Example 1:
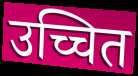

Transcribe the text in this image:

उच्चित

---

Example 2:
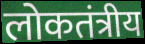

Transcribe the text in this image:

लोकतंत्रीय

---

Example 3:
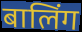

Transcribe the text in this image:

बालिंग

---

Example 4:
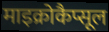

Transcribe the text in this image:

माइक्रोकैप्सूल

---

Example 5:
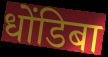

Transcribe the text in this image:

धोंडिबा